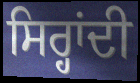
ਸਿਰ੍ਹਾਂਦੀ